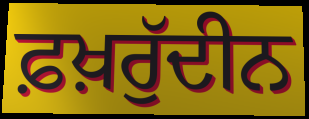
ਫ਼ਖ਼ਰੁੱਦੀਨ